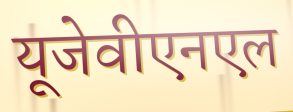
यूजेवीएनएल